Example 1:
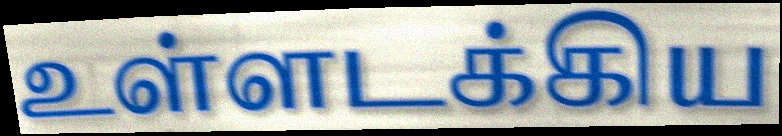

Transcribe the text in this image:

உள்ளடக்கிய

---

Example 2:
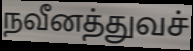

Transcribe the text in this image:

நவீனத்துவச்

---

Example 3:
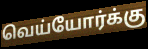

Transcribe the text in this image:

வெய்யோர்க்கு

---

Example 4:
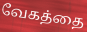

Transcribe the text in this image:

வேகத்தை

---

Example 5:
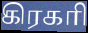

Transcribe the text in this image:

கிரகரி